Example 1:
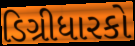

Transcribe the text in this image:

ડિગ્રીધારકો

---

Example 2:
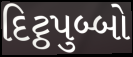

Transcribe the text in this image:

દિટ્ઠપુબ્બો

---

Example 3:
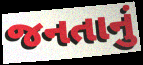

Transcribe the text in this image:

જનતાનું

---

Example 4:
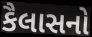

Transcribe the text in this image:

કૈલાસનો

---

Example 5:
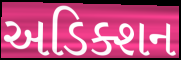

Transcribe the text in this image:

અડિક્શન